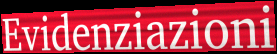
Evidenziazioni